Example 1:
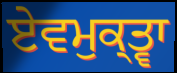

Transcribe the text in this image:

ਏਵਮੁਕ੍ਤ੍ਵਾ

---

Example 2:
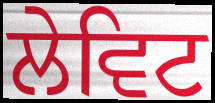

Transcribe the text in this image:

ਲੇਵਿਟ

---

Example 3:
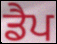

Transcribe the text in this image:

ਡੈਪ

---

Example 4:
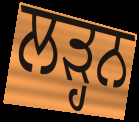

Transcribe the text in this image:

ਲੜ੍ਹਨ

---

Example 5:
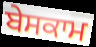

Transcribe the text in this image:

ਬੇਸਕਾਮ